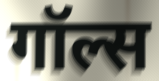
गॉल्स